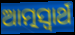
ଆତ୍ମସ୍ଵାର୍ଥ